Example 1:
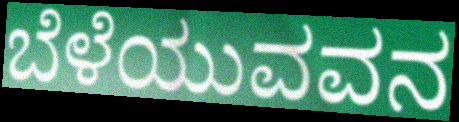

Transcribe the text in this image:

ಬೆಳೆಯುವವನ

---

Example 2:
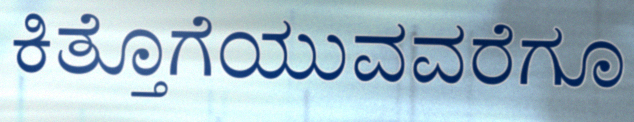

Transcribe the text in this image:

ಕಿತ್ತೊಗೆಯುವವರೆಗೂ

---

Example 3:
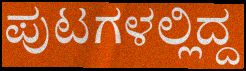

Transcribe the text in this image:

ಪುಟಗಳಲ್ಲಿದ್ದ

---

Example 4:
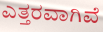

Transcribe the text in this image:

ಎತ್ತರವಾಗಿವೆ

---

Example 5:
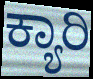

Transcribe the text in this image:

ಕ್ಯಾರಿ